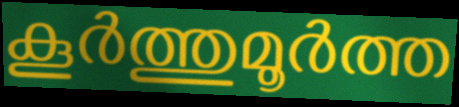
കൂർത്തുമൂർത്ത